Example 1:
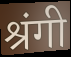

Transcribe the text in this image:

श्रंगी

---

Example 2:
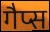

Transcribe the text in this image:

गैप्स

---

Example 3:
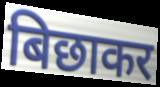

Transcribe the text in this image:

बिछाकर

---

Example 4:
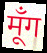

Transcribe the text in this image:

मूँग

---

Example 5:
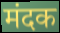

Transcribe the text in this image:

मंदक